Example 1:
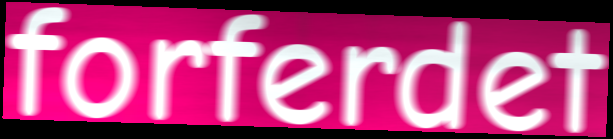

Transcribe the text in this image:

forferdet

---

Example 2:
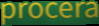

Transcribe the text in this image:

procera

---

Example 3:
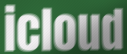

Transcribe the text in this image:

icloud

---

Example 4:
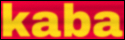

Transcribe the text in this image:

kaba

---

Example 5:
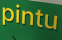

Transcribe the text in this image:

pintu